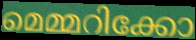
മെമ്മറിക്കോ